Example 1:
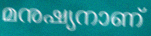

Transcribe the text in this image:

മനുഷ്യനാണ്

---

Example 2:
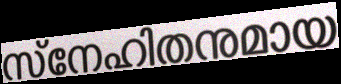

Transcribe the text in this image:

സ്‌നേഹിതനുമായ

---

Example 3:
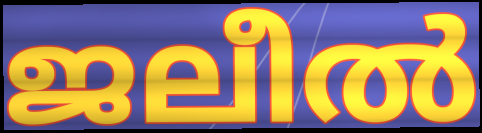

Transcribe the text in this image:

ജലീൽ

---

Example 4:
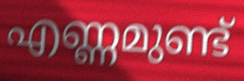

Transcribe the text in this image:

എണ്ണമുണ്ട്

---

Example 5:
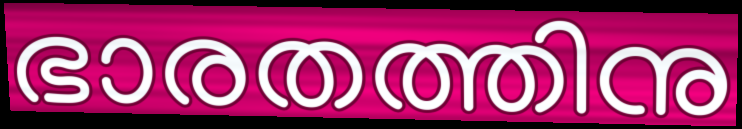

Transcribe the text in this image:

ഭാരതത്തിനു